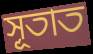
সূতাত